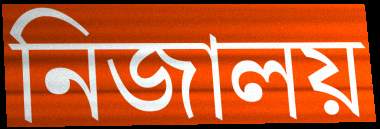
নিজালয়